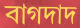
বাগদাদ